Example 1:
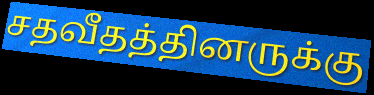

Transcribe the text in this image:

சதவீதத்தினருக்கு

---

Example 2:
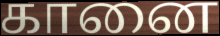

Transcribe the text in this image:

கானை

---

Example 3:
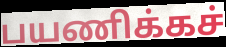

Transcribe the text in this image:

பயணிக்கச்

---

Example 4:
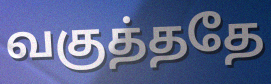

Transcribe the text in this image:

வகுத்ததே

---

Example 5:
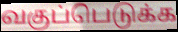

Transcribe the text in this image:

வகுப்பெடுக்க